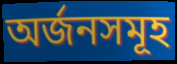
অর্জনসমূহ